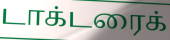
டாக்டரைக்